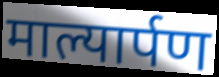
माल्यार्पण